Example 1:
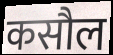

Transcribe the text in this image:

कसौल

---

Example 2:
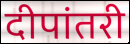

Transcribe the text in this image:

दीपांतरी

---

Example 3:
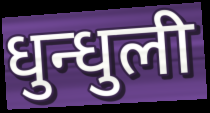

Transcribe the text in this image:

धुन्धुली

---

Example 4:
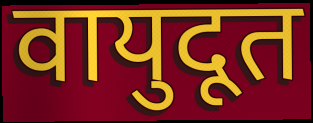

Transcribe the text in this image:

वायुदूत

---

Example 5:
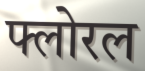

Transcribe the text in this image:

फ्लोरल